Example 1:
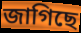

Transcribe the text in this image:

জাগিছে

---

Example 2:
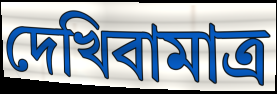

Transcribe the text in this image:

দেখিবামাত্র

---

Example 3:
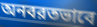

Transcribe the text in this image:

অনবরতভাবে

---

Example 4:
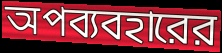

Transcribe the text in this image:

অপব্যবহারের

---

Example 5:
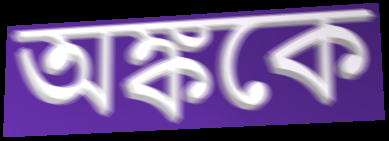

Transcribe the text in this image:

অঙ্ককে